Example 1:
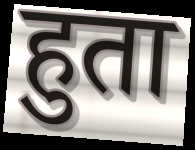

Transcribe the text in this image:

हुता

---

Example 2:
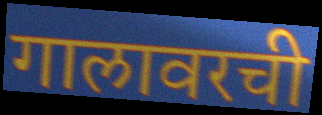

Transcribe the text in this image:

गालावरची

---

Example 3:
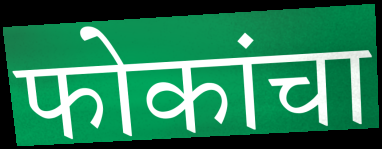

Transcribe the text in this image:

फोकांचा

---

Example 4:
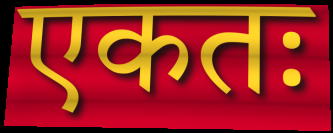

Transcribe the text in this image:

एकतः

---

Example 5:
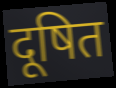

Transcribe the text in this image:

दूषित